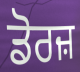
ਡੋਰਜ਼